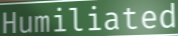
Humiliated